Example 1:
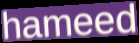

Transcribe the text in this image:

hameed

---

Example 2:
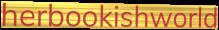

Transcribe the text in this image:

herbookishworld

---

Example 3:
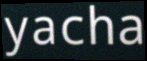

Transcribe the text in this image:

yacha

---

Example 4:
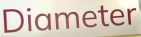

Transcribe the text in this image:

Diameter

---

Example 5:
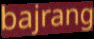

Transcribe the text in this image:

bajrang